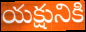
యక్షునికి